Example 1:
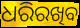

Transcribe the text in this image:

ଧରିରଖିବ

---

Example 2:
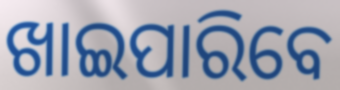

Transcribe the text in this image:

ଖାଇପାରିବେ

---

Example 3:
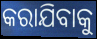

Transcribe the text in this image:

କରାଯିବାକୁ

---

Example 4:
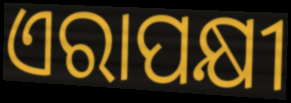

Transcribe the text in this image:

ଏରାପକ୍ଷୀ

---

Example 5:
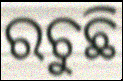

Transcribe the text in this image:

ରଚୁଛି